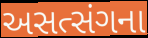
અસત્સંગના